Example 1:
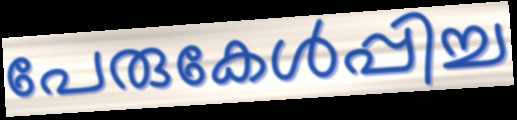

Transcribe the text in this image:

പേരുകേൾപ്പിച്ച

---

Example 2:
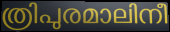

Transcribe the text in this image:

ത്രിപുരമാലിനീ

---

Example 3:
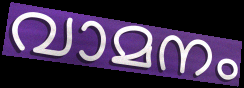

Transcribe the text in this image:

വാമനം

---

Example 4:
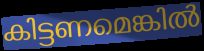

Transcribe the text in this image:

കിട്ടണമെങ്കിൽ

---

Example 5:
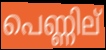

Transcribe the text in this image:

പെണ്ണില്